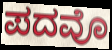
ಪದವೊ